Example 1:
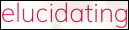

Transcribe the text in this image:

elucidating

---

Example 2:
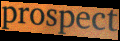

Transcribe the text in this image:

prospect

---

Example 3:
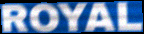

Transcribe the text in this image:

ROYAL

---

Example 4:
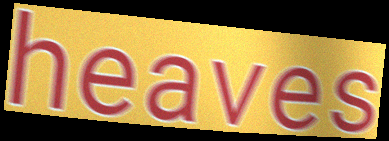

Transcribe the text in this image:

heaves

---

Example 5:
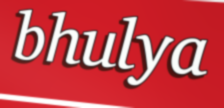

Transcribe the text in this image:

bhulya